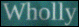
Wholly